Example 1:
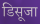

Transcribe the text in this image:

डिसूजा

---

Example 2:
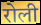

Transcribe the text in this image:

रोली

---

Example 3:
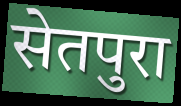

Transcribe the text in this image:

सेतपुरा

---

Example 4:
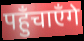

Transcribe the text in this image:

पहुँचाएँगे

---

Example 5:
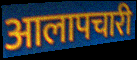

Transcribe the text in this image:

आलापचारी